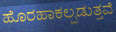
ಹೊರಹಾಕಲ್ಪಡುತ್ತವೆ